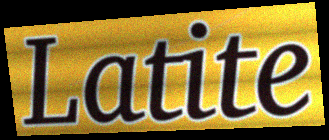
Latite